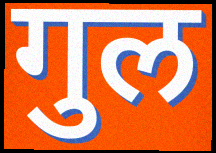
गुल